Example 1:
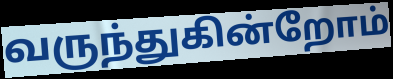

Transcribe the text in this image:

வருந்துகின்றோம்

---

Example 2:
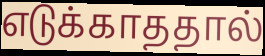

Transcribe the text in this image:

எடுக்காததால்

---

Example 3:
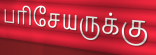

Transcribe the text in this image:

பரிசேயருக்கு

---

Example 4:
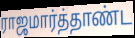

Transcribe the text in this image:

ராஜமார்த்தாண்ட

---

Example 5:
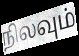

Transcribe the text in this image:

நிலவும்